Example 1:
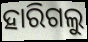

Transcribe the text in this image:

ହାରିଗଲୁ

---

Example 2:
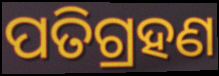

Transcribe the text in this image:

ପତିଗ୍ରହଣ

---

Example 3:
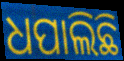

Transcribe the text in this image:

ଧପାଲିଛି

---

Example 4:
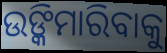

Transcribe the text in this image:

ଉଙ୍କିମାରିବାକୁ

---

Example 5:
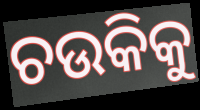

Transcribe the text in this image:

ଚଉକିକୁ